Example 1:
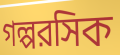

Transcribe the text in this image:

গল্পরসিক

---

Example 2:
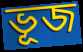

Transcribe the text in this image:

ভূজ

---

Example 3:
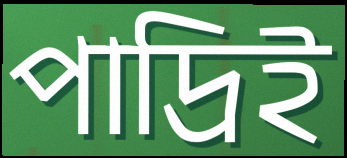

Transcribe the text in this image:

পাদ্রিই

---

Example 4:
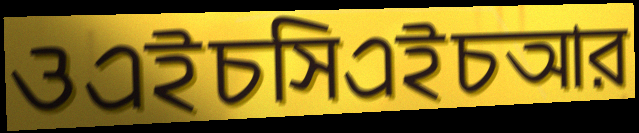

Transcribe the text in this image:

ওএইচসিএইচআর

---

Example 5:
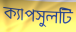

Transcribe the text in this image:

ক্যাপসুলটি